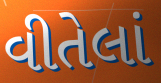
વીતેલાં